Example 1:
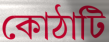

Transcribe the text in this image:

কোঠাটি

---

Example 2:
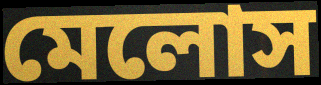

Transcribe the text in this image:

মেলোস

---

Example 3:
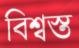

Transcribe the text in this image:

বিশ্বস্ত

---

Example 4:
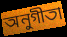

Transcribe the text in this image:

অনুগীতা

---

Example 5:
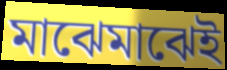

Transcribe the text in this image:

মাঝেমাঝেই